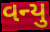
વન્યુ